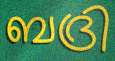
ബദ്രി